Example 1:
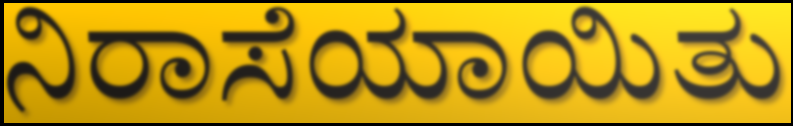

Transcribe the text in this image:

ನಿರಾಸೆಯಾಯಿತು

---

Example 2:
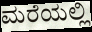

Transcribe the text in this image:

ಮರೆಯಲ್ಲಿ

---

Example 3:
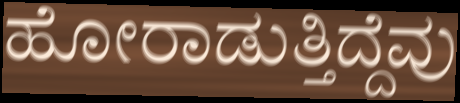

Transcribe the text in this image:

ಹೋರಾಡುತ್ತಿದ್ದೆವು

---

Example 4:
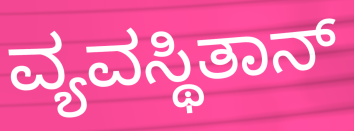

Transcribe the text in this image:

ವ್ಯವಸ್ಥಿತಾನ್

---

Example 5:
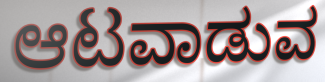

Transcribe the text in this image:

ಆಟವಾಡುವ